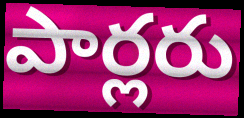
పార్లరు